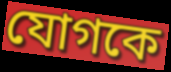
যোগকে